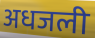
अधजली